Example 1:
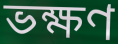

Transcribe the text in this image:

ভক্ষণ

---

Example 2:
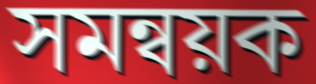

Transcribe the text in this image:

সমন্বয়ক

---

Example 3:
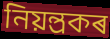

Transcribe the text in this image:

নিয়ন্ত্ৰকৰ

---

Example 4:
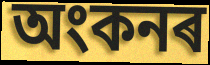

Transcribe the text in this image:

অংকনৰ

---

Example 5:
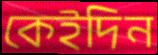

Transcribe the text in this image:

কেইদিন